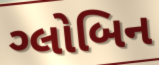
ગ્લોબિન